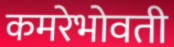
कमरेभोवती